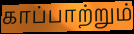
காப்பாற்றும்